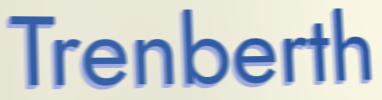
Trenberth